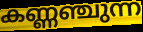
കണ്ണഞ്ചുന്ന